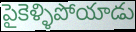
పైకెళ్ళిపోయాడు